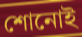
শোনোই